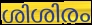
ശിശിരം